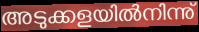
അടുക്കളയിൽനിന്നു്